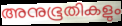
അനുഭൂതികളും